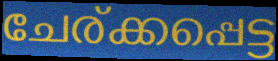
ചേര്ക്കപ്പെട്ട